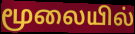
மூலையில்